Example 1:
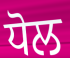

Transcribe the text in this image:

ਧੋਲ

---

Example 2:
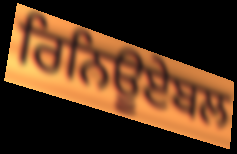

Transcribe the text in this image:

ਰਿਨਿਊਏਬਲ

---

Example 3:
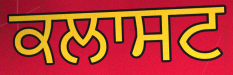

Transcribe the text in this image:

ਕਲਾਸਟ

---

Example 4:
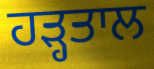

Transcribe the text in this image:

ਹੜ੍ਹਤਾਲ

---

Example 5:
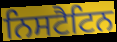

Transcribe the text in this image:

ਨਿਸਟੈਟਿਨ